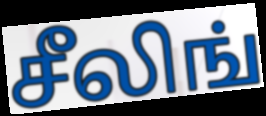
சீலிங்